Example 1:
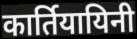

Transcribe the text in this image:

कार्तियायिनी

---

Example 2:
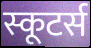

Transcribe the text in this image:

स्‍कूटर्स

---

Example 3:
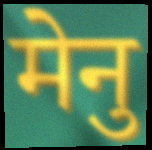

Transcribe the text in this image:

मेनु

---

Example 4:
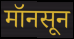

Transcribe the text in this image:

मॉनसून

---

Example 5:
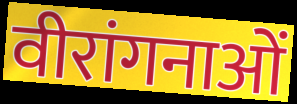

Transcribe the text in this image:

वीरांगनाओं